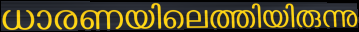
ധാരണയിലെത്തിയിരുന്നു